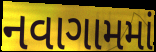
નવાગામમાં